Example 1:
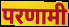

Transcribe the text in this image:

परणामी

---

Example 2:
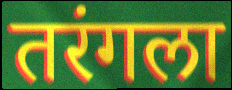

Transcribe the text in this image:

तरंगला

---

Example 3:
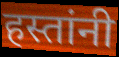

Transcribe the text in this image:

हस्तांनी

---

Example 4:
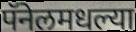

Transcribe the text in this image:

पॅनेलमधल्या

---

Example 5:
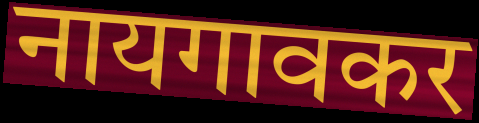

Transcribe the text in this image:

नायगावकर